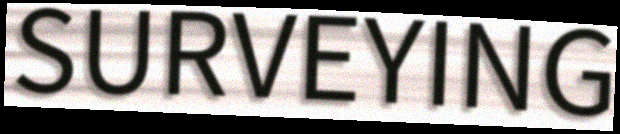
SURVEYING